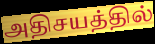
அதிசயத்தில்